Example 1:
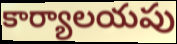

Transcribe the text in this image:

కార్యాలయపు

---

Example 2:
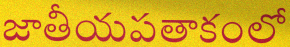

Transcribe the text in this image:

జాతీయపతాకంలో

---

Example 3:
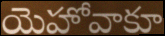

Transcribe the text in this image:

యెహోవాకూ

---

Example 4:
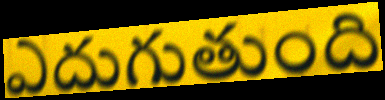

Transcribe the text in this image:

ఎదుగుతుంది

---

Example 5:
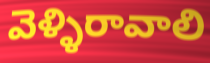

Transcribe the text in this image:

వెళ్ళిరావాలి